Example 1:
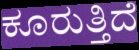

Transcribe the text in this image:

ಕೂರುತ್ತಿದೆ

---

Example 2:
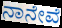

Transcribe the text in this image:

ನಾನೇವೆ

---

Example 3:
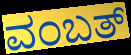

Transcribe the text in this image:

ವಂಬತ್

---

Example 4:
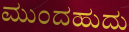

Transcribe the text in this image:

ಮುಂದಹುದು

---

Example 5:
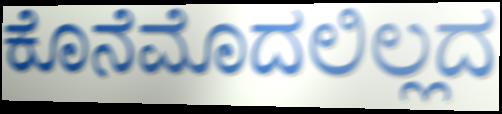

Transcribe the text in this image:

ಕೊನೆಮೊದಲಿಲ್ಲದ